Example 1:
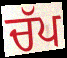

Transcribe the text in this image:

ਚੱਪ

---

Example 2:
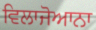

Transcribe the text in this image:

ਵਿਲਾਜੋਆਨਾ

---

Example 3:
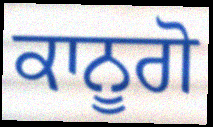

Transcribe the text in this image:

ਕਾਨੂਗੋ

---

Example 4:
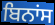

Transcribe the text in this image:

ਬਿਨਾਂਸ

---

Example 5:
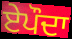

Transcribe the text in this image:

ਏਪੌਦਾ